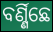
ବର୍ଣ୍ଣିଛେ